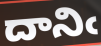
దానిఁ